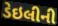
ડેઇલીની